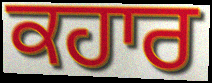
ਕਹਾਰ